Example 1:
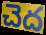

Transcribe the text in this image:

చెద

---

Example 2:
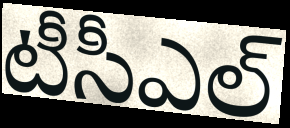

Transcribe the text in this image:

టీసీఎల్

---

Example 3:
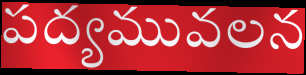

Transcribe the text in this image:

పద్యమువలన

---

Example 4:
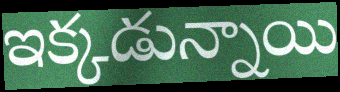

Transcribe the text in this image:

ఇక్కడున్నాయి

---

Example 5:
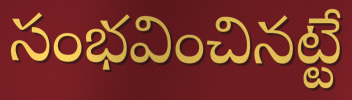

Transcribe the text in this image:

సంభవించినట్టే